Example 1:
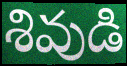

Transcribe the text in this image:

శివుడి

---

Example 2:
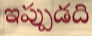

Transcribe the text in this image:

ఇప్పుడది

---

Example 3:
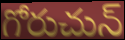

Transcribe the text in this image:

గోరుచున్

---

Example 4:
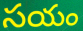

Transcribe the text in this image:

సయం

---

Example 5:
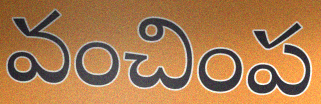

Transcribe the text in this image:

వంచింప